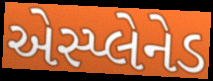
એસ્પ્લેનેડ